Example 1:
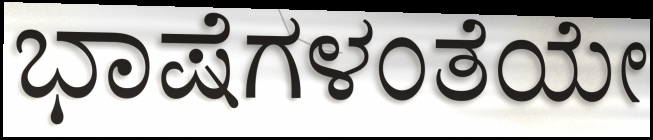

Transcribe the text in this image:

ಭಾಷೆಗಳಂತೆಯೇ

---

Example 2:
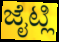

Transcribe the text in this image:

ಜೈಟ್ಲಿ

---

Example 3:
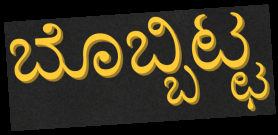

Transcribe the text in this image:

ಬೊಬ್ಬಿಟ್ಟ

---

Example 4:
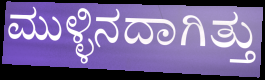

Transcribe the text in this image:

ಮುಳ್ಳಿನದಾಗಿತ್ತು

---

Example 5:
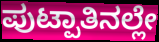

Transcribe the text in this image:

ಪುಟ್ಪಾತಿನಲ್ಲೇ